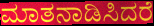
ಮಾತನಾಡಿಸಿದರೆ